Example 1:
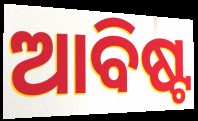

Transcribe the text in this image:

ଆବିଷ୍ଟ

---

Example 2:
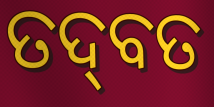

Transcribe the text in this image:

ତଦ୍‌ବତ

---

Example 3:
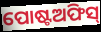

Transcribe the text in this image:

ପୋଷ୍ଟଅଫିସ୍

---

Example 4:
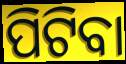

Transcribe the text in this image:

ପିଟିବା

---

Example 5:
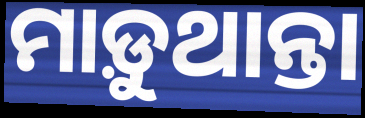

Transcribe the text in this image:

ମାଡ଼ୁଥାନ୍ତା